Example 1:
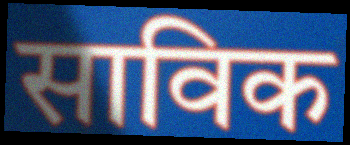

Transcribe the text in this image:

साविक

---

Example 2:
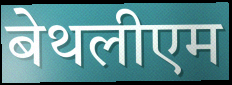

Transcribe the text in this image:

बेथलीएम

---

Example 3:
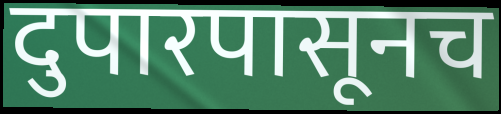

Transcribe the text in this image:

दुपारपासूनच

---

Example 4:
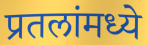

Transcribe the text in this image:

प्रतलांमध्ये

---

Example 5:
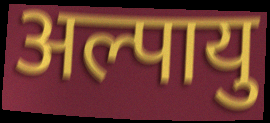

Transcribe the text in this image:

अल्पायु